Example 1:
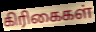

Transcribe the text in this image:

கிரிகைகள்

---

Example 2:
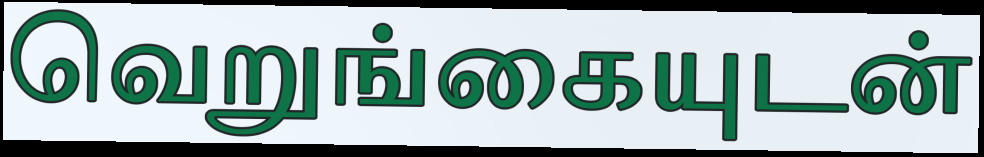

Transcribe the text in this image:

வெறுங்கையுடன்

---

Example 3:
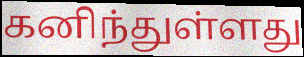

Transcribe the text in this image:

கனிந்துள்ளது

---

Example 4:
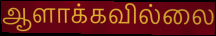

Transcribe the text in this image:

ஆளாக்கவில்லை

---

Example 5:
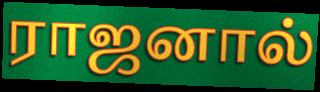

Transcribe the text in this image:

ராஜனால்